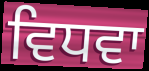
ਵਿਧਵਾ